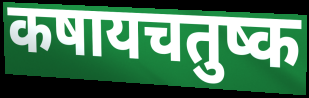
कषायचतुष्क